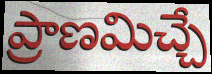
ప్రాణమిచ్చే